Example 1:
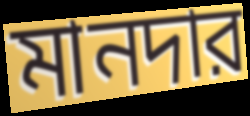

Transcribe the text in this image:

মানদার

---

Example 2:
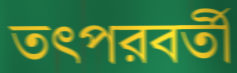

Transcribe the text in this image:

তৎপরবর্তী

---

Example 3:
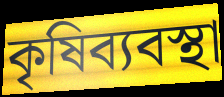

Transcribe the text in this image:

কৃষিব্যবস্থা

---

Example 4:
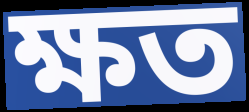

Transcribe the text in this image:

ক্ষত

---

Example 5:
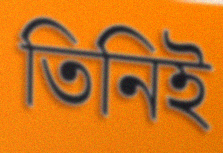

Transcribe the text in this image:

তিনিই